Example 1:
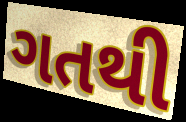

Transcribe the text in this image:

ગતથી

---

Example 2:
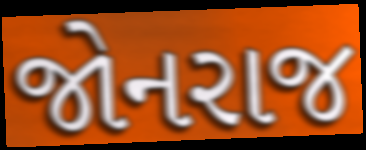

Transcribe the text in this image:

જોનરાજ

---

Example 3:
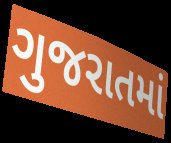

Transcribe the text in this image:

ગુજરાતમાં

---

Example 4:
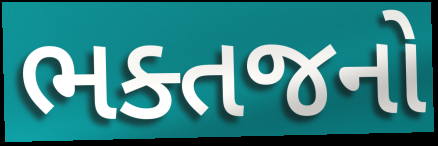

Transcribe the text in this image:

ભક્તજનો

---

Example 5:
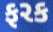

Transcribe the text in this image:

ફરક